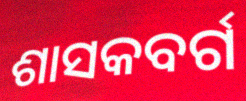
ଶାସକବର୍ଗ